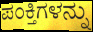
ಪಂಕ್ತಿಗಳನ್ನು